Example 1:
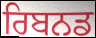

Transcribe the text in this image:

ਰਿਬਨਡ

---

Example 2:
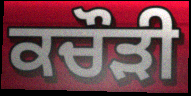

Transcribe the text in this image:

ਕਚੌੜੀ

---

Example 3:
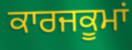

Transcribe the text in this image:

ਕਾਰਜਕੂਮਾਂ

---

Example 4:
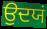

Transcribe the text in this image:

ਉਦਯਂ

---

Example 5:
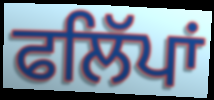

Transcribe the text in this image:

ਫਲਿੱਪਾਂ